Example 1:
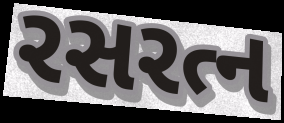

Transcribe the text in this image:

રસરત્ન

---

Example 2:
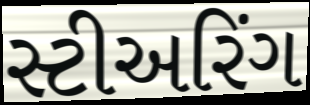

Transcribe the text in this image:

સ્ટીઅરિંગ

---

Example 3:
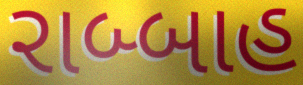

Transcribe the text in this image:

રાબ્બાહ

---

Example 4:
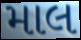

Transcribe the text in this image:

માલ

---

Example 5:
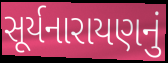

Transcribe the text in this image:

સૂર્યનારાયણનું